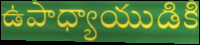
ఉపాధ్యాయుడికి